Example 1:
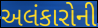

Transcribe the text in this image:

અલંકારોની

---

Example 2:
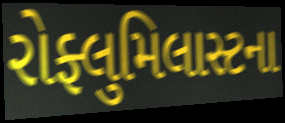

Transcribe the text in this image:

રોફ્લુમિલાસ્ટના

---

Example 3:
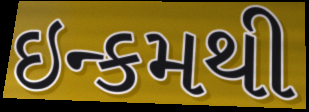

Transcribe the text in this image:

ઇન્કમથી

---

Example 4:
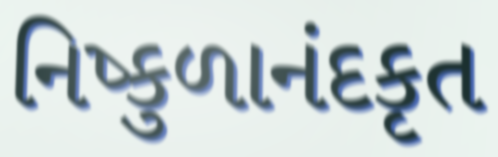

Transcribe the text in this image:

નિષ્કુળાનંદકૃત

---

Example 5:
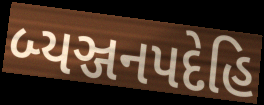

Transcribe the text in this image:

બ્યઞ્જનપદેહિ